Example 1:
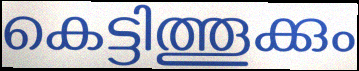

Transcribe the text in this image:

കെട്ടിത്തൂക്കും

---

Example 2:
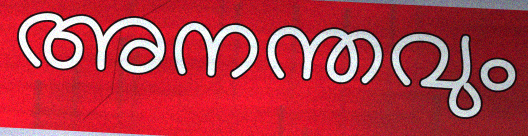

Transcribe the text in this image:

അനന്തവും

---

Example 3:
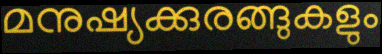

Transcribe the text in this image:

മനുഷ്യക്കുരങ്ങുകളും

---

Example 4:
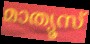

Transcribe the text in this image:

മാത്യൂസ്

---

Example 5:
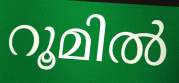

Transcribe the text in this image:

റൂമിൽ